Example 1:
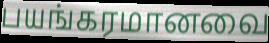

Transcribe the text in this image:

பயங்கரமானவை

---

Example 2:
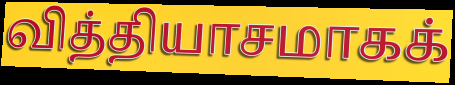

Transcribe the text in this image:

வித்தியாசமாகக்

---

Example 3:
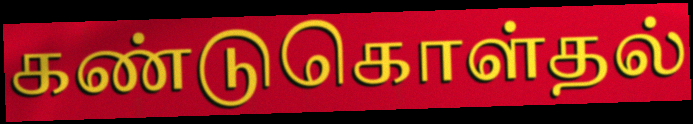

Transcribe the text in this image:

கண்டுகொள்தல்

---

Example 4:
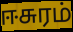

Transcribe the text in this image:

ஈசுரம்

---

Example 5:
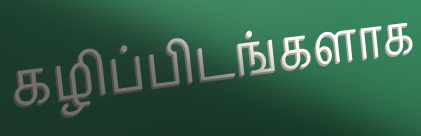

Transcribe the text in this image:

கழிப்பிடங்களாக